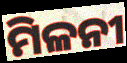
ମିଳନୀ